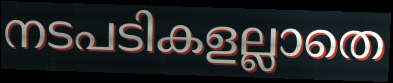
നടപടികളല്ലാതെ